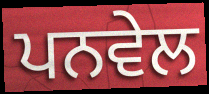
ਪਨਵੇਲ